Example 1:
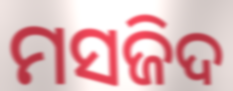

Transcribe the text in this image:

ମସଜିଦ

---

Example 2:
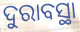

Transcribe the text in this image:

ଦୁରାବସ୍ଥା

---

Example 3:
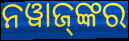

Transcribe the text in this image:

ନୱାଜ୍‍ଙ୍କର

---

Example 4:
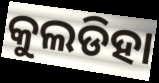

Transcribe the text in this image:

କୁଲଡିହା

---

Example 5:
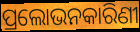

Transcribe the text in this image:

ପ୍ରଲୋଭନକାରିଣୀ